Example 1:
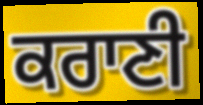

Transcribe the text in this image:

ਕਰਾਣੀ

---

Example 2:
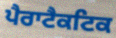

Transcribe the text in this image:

ਪੈਰਾਟੈਕਟਿਕ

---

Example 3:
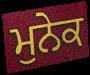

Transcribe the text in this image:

ਮੁਨੇਕ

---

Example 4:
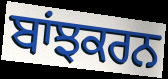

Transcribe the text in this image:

ਬਾਂਝਕਰਨ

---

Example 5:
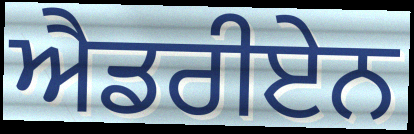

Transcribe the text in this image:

ਐਡਰੀਏਨ